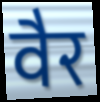
वैर